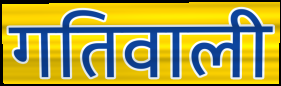
गतिवाली